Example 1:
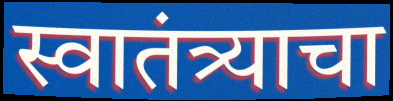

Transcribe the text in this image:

स्वातंत्र्याचा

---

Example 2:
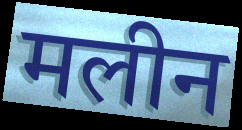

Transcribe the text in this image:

मलीन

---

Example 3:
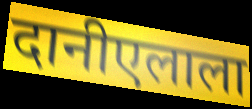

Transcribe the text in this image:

दानीएलाला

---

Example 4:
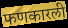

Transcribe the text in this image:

फणकारली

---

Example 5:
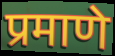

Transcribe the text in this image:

प्रमाणे